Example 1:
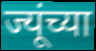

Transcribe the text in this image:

ज्यूंच्या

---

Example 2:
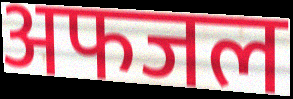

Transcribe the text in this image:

अफजल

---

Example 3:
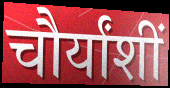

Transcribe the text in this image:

चौर्यांशीं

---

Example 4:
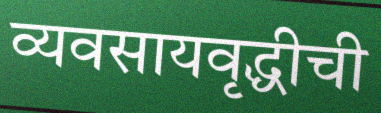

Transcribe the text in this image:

व्यवसायवृद्धीची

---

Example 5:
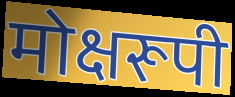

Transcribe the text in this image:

मोक्षरूपी